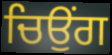
ਚਿਉਂਗ